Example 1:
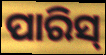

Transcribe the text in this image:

ପାରିସ୍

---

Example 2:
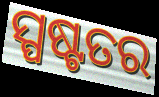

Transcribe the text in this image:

ସ୍ପଷ୍ଟତର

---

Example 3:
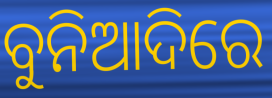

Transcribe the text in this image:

ବୁନିଆଦିରେ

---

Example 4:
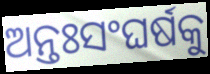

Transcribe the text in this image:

ଅନ୍ତଃସଂଘର୍ଷକୁ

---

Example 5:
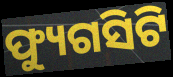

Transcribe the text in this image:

ଫ୍ୟୁଗସିଟି